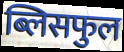
ब्लिसफुल